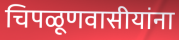
चिपळूणवासीयांना